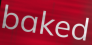
baked